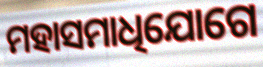
ମହାସମାଧିଯୋଗେ